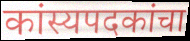
कांस्यपदकांचा